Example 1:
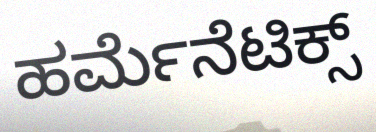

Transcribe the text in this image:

ಹರ್ಮೆನೆಟಿಕ್ಸ್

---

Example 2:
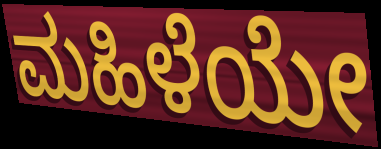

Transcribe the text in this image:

ಮಹಿಳೆಯೇ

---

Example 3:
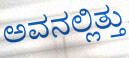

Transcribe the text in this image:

ಅವನಲ್ಲಿತ್ತು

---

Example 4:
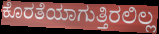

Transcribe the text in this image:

ಕೊರತೆಯಾಗುತ್ತಿರಲಿಲ್ಲ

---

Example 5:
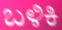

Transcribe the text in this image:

ಬಳಿಕಿ